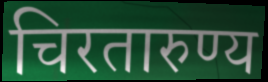
चिरतारुण्य